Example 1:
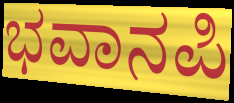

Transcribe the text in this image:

ಭವಾನಪಿ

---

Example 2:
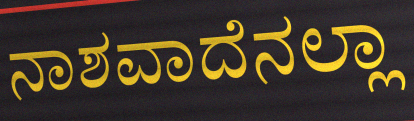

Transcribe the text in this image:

ನಾಶವಾದೆನಲ್ಲಾ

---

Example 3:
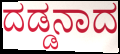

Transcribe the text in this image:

ದಡ್ಡನಾದ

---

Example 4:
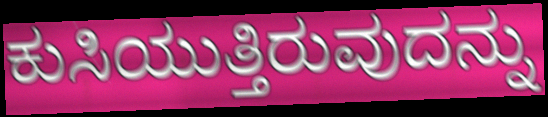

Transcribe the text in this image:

ಕುಸಿಯುತ್ತಿರುವುದನ್ನು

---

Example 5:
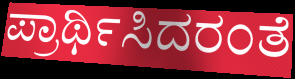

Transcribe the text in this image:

ಪ್ರಾರ್ಥಿಸಿದರಂತೆ